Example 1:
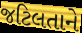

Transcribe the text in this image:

જટિલતાને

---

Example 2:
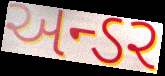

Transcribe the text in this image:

અન્ડર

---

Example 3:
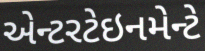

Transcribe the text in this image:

એન્ટરટેઇનમેન્ટે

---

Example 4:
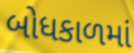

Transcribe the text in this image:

બોધકાળમાં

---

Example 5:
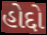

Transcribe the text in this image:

હોદ્દો